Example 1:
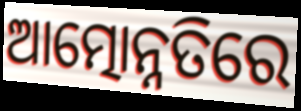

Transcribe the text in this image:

ଆତ୍ମୋନ୍ନତିରେ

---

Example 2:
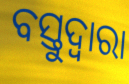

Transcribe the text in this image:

ବସ୍ତୁଦ୍ଵାରା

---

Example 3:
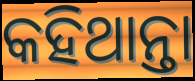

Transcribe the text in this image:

କହିଥାନ୍ତା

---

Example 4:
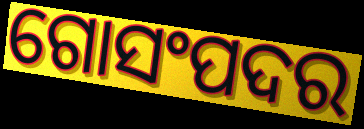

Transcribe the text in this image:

ଗୋସଂପଦର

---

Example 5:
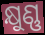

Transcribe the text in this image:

କ୍ଷୁଣ୍ଣ